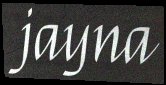
jayna